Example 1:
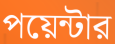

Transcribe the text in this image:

পয়েন্টার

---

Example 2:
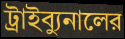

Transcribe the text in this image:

ট্রাইব্যুনালের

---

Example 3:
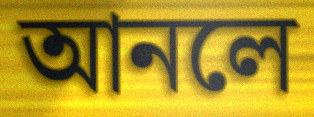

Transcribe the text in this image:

আনলে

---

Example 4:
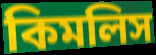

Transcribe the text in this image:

কিমলিস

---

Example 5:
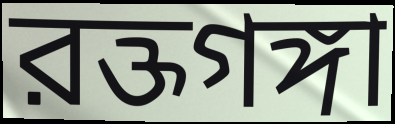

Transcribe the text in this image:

রক্তগঙ্গা